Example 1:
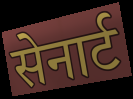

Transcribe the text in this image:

सेनार्ट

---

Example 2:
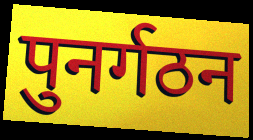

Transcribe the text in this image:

पुनर्गठन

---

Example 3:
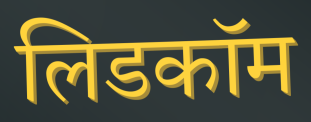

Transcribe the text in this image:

लिडकॉम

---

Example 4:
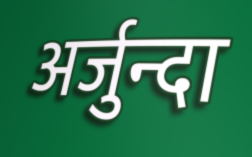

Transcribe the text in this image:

अर्जुन्दा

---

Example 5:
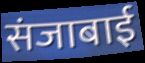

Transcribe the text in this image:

संजाबाई